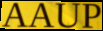
AAUP